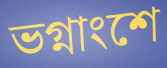
ভগ্নাংশে